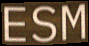
ESM